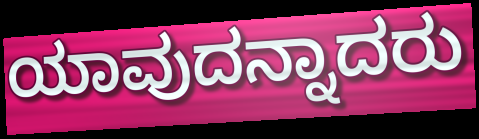
ಯಾವುದನ್ನಾದರು